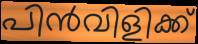
പിൻവിളിക്ക്